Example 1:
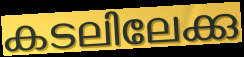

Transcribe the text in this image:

കടലിലേക്കു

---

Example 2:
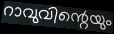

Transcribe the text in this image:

റാവുവിന്റെയും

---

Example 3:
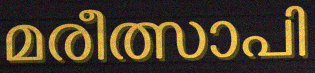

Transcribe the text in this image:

മരീത്സാപി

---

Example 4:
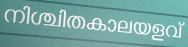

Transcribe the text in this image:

നിശ്ചിതകാലയളവ്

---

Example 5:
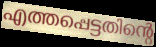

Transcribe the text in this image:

എത്തപ്പെട്ടതിന്റെ